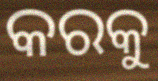
କରକୁ